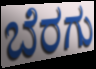
ಬೆರಗು